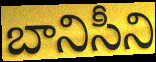
బానిసీని